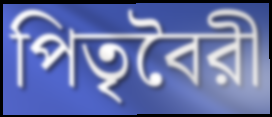
পিতৃবৈরী